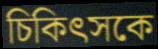
চিকিৎসকে